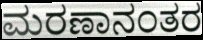
ಮರಣಾನಂತರ